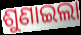
ଶୁଣାଇଲା